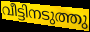
വീട്ടിനടുത്തു